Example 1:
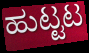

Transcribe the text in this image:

ಹುಟ್ಟಟ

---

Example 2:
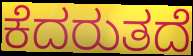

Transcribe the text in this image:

ಕೆದರುತದೆ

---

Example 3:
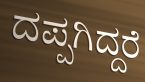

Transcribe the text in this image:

ದಪ್ಪಗಿದ್ದರೆ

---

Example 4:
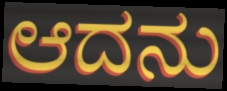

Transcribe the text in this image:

ಆದನು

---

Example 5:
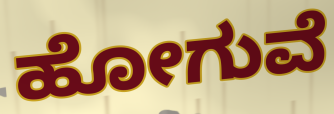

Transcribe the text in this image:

ಹೋಗುವೆ